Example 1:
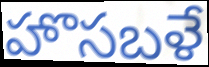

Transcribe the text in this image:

హొసబళే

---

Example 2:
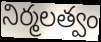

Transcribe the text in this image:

నిర్మలత్వం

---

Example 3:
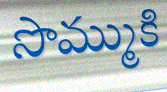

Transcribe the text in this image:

సొమ్ముకి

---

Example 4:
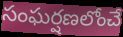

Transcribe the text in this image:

సంఘర్షణలోంచే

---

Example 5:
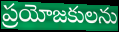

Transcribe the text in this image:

ప్రయోజకులను